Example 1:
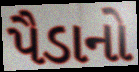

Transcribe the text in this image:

પૈડાનો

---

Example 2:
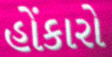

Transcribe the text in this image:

હોંકારો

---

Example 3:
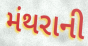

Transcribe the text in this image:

મંથરાની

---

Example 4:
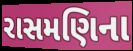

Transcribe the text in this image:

રાસમણિના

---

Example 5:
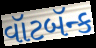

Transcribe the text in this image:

વૉટબૅન્ક